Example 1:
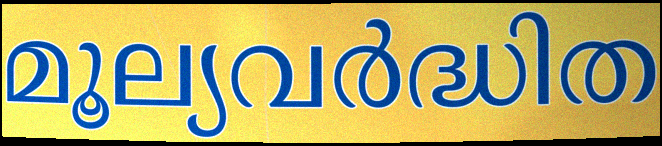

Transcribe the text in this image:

മൂല്യവർദ്ധിത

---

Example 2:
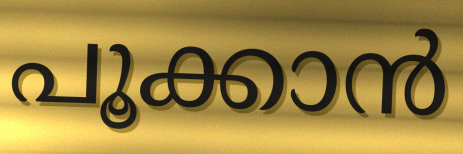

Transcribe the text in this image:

പൂക്കാൻ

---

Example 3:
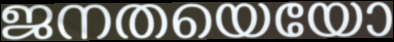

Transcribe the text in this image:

ജനതയെയോ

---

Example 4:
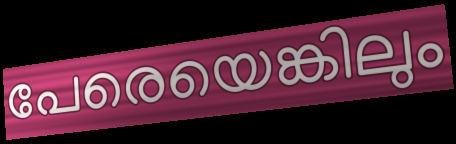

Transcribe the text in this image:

പേരെയെങ്കിലും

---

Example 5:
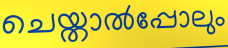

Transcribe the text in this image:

ചെയ്താൽപ്പോലും